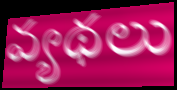
వ్యథలు